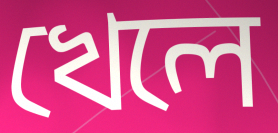
খেলে